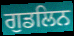
ਗੁਡਲਿਨ